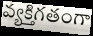
వ్యక్తిగతంగా